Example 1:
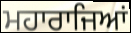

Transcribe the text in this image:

ਮਹਾਰਾਜਿਆਂ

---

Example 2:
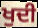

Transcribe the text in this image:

ਖੁਦੀ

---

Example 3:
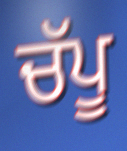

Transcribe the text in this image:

ਚੱਪੂ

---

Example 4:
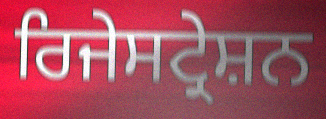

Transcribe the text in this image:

ਰਿਜੇਸਟ੍ਰੇਸ਼ਨ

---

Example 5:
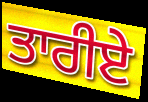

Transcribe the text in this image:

ਤਾਰੀਏ